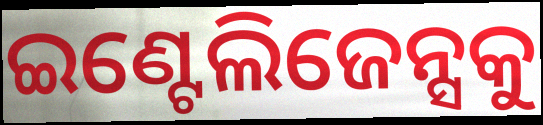
ଇଣ୍ଟେଲିଜେନ୍ସକୁ